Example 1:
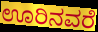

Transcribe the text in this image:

ಊರಿನವರೆ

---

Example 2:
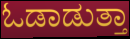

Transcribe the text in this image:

ಓಡಾಡುತ್ತಾ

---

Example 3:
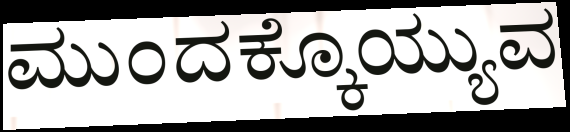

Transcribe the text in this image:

ಮುಂದಕ್ಕೊಯ್ಯುವ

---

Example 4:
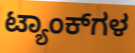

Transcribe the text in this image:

ಟ್ಯಾಂಕ್‌ಗಳ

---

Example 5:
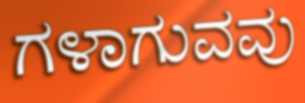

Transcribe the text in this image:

ಗಳಾಗುವವು